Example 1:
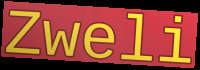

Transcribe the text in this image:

Zweli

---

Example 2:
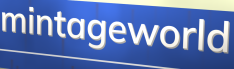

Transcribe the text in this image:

mintageworld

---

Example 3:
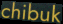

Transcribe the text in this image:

chibuk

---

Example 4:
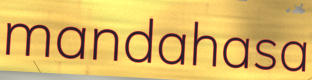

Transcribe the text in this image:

mandahasa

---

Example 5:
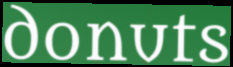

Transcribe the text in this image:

donuts